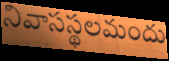
నివాసస్థలమందు